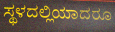
ಸ್ಥಳದಲ್ಲಿಯಾದರೂ